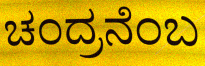
ಚಂದ್ರನೆಂಬ